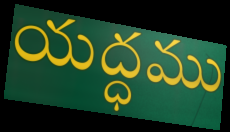
యద్ధము